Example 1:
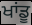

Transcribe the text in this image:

ਖਾਂਡੂ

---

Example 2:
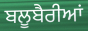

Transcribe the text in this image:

ਬਲੂਬੈਰੀਆਂ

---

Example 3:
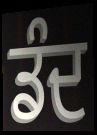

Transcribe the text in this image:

ਡੰਦ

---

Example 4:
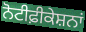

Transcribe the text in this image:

ਨੋਟੀਫ਼ੀਕੇਸ਼ਨਾਂ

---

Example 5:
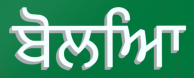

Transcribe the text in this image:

ਬੋਲਆਿ